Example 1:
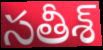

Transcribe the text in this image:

సతీశ్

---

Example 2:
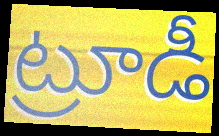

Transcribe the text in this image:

ట్రూడీ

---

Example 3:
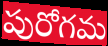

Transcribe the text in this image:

పురోగమ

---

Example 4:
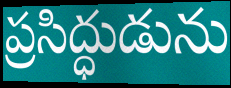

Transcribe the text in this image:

ప్రసిద్ధుడును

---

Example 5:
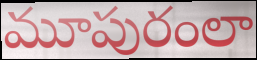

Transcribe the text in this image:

మూపురంలా